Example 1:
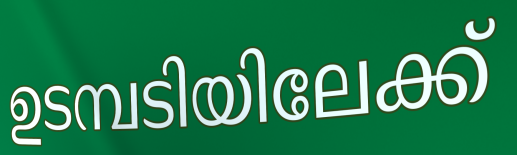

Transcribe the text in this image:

ഉടമ്പടിയിലേക്ക്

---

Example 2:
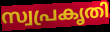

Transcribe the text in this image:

സ്വപ്രകൃതി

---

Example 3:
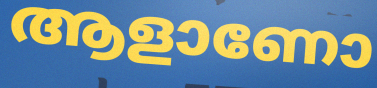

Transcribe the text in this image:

ആളാണോ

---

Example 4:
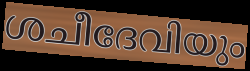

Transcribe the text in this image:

ശചീദേവിയും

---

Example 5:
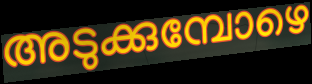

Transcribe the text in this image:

അടുക്കുമ്പോഴെ